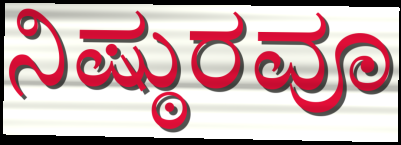
ನಿಷ್ಠುರವೂ